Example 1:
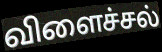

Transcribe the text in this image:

விளைச்சல்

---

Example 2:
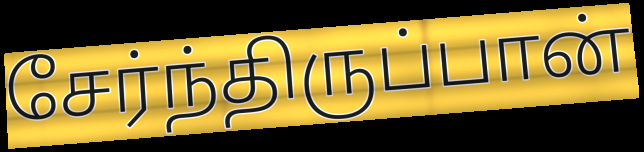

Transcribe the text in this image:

சேர்ந்திருப்பான்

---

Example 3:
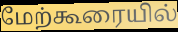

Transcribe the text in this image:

மேற்கூரையில்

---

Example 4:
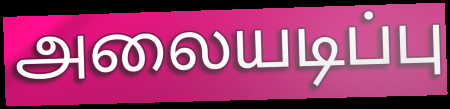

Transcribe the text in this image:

அலையடிப்பு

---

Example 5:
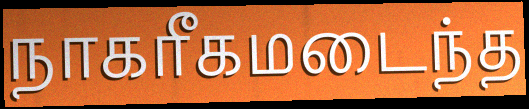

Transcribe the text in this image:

நாகரீகமடைந்த